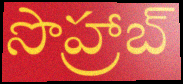
సొహ్రాబ్